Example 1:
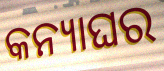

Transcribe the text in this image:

କନ୍ୟାଘର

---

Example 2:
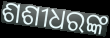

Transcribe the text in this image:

ଶଶୀଧରଙ୍କ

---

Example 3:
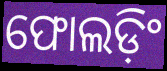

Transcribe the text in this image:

ଫୋଲଡ଼ିଂ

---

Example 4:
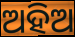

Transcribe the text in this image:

ଅହିଅ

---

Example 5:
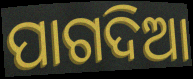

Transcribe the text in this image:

ପାଗଦିଆ